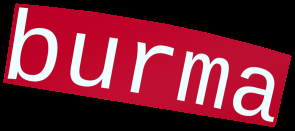
burma